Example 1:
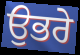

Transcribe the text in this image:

ਉਭਰੇ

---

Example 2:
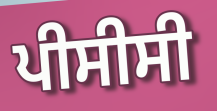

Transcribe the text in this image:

ਪੀਸੀਸੀ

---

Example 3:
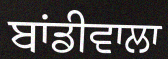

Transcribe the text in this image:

ਬਾਂਡੀਵਾਲਾ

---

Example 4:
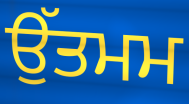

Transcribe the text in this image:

ਉੱਤਮਮ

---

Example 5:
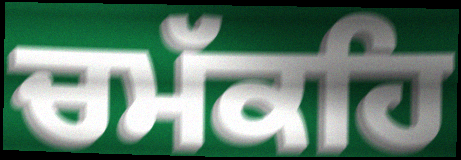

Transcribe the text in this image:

ਚਮੱਕਹਿ